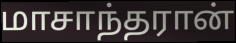
மாசாந்தரான்